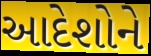
આદેશોને